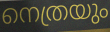
നെത്രയും